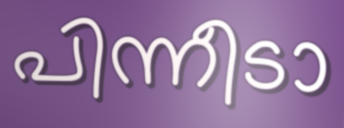
പിന്നീടാ